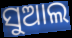
ସୁଆଲ